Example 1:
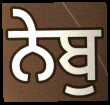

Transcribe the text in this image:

ਨੇਬੁ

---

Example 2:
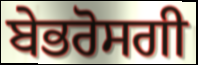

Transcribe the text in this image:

ਬੇਭਰੋਸਗੀ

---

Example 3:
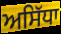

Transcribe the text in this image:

ਅਸਿੱਧਾ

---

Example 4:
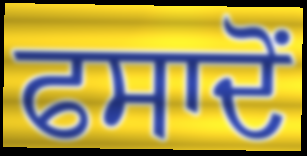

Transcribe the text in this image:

ਫਸਾਦੋਂ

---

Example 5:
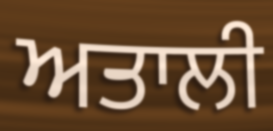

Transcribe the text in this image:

ਅਤਾਲੀ